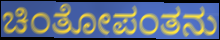
ಚಿಂತೋಪಂತನು